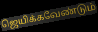
ஜெயிக்கவேண்டும்